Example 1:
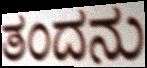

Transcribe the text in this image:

ತಂದನು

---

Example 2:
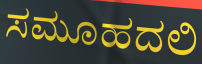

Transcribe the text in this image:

ಸಮೂಹದಲಿ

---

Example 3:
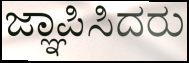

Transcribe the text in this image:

ಜ್ಞಾಪಿಸಿದರು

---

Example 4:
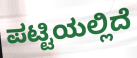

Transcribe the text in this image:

ಪಟ್ಟಿಯಲ್ಲಿದೆ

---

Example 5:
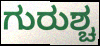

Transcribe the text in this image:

ಗುರುಶ್ಚ